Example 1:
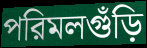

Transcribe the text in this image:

পরিমলগুঁড়ি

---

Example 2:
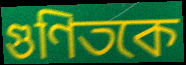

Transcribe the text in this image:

গুণিতকে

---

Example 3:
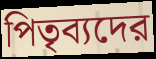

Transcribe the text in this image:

পিতৃব্যদের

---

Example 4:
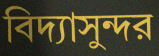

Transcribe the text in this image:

বিদ্যাসুন্দর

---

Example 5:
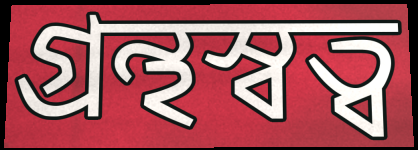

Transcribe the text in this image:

গ্রন্থস্বত্ব